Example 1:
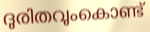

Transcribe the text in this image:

ദുരിതവുംകൊണ്ട്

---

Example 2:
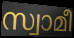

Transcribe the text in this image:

സ്വാമീ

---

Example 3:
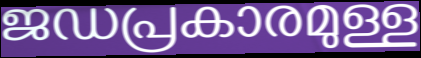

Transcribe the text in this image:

ജഡപ്രകാരമുള്ള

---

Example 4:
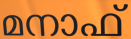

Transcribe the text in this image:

മനാഫ്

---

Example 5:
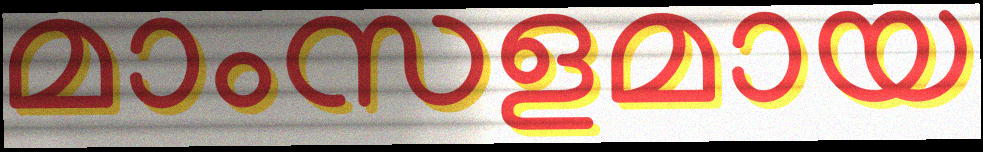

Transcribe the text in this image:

മാംസളമായ